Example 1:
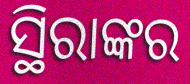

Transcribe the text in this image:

ସ୍ଥିରାଙ୍କର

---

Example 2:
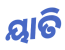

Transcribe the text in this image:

ୟାତି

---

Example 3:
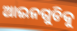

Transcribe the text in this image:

ଆଇନଗୁଡିକୁ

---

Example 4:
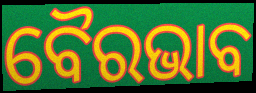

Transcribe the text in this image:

ବୈରଭାବ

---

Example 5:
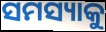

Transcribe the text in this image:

ସମସ୍ୟାକୁ